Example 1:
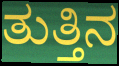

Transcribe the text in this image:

ತುತ್ತಿನ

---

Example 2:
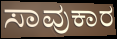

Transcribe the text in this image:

ಸಾವುಕಾರ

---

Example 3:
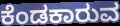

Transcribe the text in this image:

ಕೆಂಡಕಾರುವ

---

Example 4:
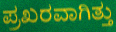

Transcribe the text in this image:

ಪ್ರಖರವಾಗಿತ್ತು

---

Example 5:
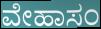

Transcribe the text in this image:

ವೇಹಾಸಂ